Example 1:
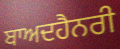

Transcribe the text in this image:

ਬਾਅਦਹੈਨਰੀ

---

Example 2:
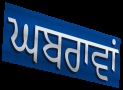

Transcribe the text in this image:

ਘਬਰਾਵਾਂ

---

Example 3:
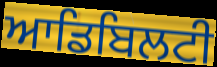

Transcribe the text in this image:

ਆਡਿਬਿਲਟੀ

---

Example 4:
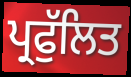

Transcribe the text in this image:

ਪ੍ਰਫੁੱਲਿਤ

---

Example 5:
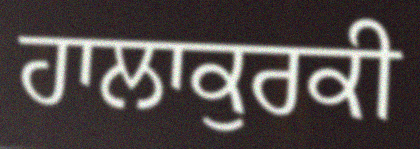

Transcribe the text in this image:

ਹਾਲਾਕੁਰਕੀ